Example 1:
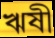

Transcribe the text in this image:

ঋষী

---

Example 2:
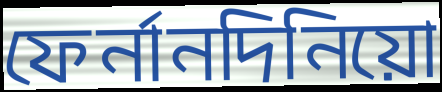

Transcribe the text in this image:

ফের্নানদিনিয়ো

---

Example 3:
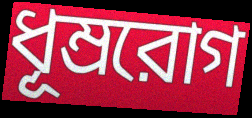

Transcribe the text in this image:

ধূম্ররোগ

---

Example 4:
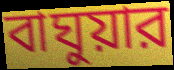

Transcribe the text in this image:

বাঘুয়ার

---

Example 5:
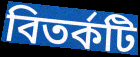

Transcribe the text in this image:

বিতর্কটি